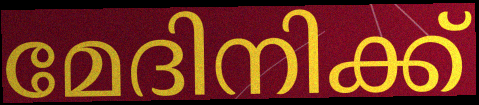
മേദിനിക്ക്